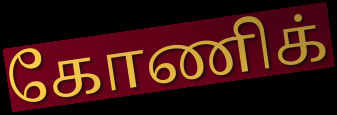
கோணிக்